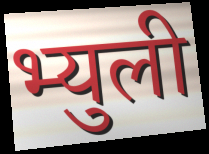
भ्युली